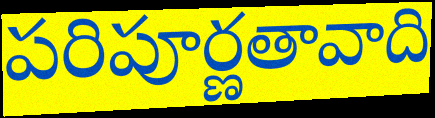
పరిపూర్ణతావాది